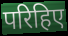
परिहिए